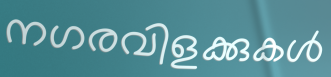
നഗരവിളക്കുകൾ